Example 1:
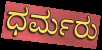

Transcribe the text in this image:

ಧರ್ಮರು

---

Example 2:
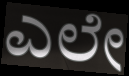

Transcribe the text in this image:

ಎಲೇ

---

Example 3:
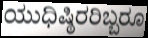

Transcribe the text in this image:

ಯುಧಿಷ್ಠಿರರಿಬ್ಬರೂ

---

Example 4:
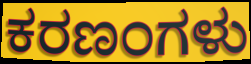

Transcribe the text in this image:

ಕರಣಂಗಳು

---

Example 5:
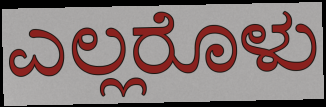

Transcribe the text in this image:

ಎಲ್ಲರೊಳು